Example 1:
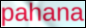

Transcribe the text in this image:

pahana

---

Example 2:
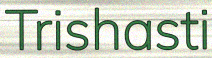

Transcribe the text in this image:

Trishasti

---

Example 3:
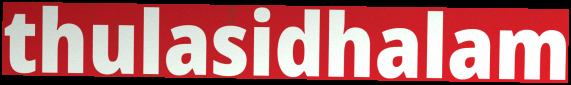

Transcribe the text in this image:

thulasidhalam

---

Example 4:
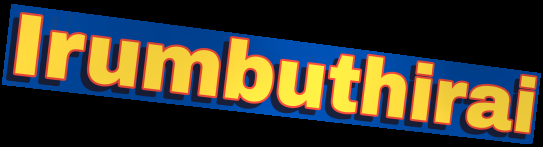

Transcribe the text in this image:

Irumbuthirai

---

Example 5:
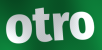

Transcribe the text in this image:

otro